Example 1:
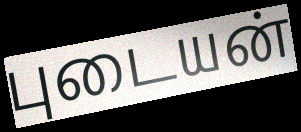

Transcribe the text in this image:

புடையன்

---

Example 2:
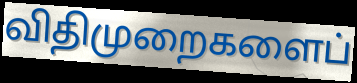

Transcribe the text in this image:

விதிமுறைகளைப்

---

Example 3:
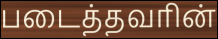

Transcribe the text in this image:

படைத்தவரின்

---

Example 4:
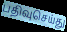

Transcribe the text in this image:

பதிவுசெய்து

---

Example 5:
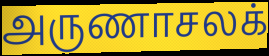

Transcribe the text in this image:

அருணாசலக்